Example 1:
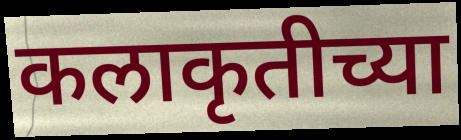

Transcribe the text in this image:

कलाकृतीच्या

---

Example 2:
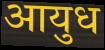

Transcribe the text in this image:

आयुध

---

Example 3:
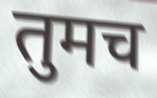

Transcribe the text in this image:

तुमच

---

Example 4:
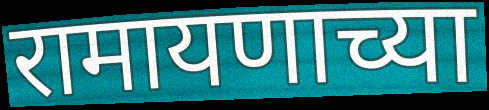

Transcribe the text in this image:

रामायणाच्या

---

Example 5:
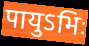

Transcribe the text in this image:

पायुऽभिः